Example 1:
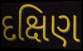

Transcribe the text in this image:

દક્ષિણ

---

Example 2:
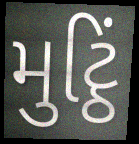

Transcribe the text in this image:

મુટ્ઠિં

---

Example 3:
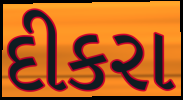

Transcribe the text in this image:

દીકરા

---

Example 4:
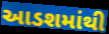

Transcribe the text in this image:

આડશમાંથી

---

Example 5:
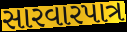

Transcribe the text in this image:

સારવારપાત્ર